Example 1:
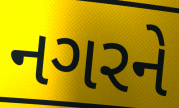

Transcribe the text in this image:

નગરને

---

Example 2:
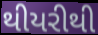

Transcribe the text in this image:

થીયરીથી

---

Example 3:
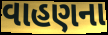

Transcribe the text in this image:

વાહણના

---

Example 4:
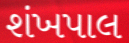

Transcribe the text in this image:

શંખપાલ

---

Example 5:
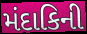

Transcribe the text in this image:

મંદાકિની